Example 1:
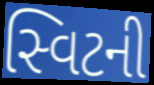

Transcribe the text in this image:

સ્વિટની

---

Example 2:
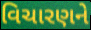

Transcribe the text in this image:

વિચારણને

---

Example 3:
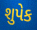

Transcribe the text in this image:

શુપેક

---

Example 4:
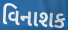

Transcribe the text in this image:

વિનાશક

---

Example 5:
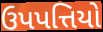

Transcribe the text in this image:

ઉપપત્તિયો